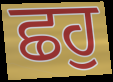
ਛਹੁ